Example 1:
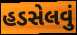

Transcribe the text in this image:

હડસેલવું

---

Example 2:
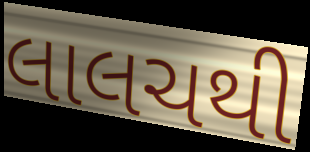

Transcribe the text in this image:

લાલચથી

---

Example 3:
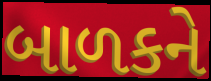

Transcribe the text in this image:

બાળકને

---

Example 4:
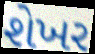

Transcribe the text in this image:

શેખર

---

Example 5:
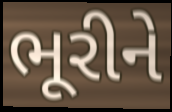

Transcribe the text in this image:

ભૂરીને